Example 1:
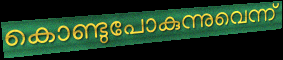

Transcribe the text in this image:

കൊണ്ടുപോകുന്നുവെന്ന്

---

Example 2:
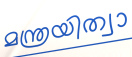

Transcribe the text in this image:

മന്ത്രയിത്വാ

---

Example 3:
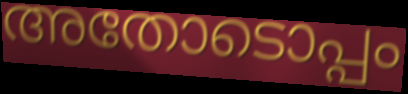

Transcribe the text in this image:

അതോടൊപ്പം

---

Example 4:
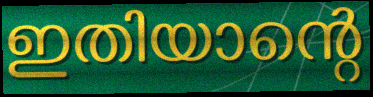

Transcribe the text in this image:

ഇതിയാന്റെ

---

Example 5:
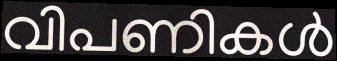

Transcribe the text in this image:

വിപണികൾ